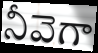
నీవెగా